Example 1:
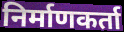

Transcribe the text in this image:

निर्माणकर्ता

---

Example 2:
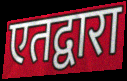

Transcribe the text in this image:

एतद्वारा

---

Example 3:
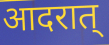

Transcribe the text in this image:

आदरात्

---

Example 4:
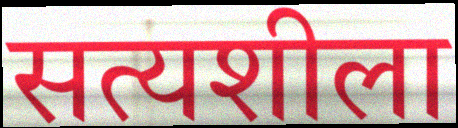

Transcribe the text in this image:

सत्यशीला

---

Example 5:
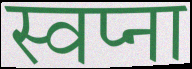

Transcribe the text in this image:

स्वप्ना